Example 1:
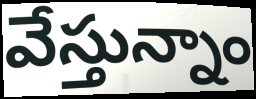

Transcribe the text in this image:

వేస్తున్నాం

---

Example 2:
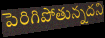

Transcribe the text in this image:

పెరిగిపోతున్నదని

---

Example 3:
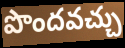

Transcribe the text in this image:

పొందవచ్చు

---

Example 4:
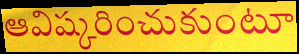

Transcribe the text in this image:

ఆవిష్కరించుకుంటూ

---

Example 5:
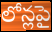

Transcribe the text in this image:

లోన్లపై